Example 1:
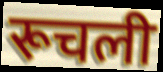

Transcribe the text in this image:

रूचली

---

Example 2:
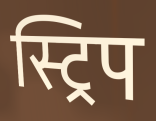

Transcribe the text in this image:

स्ट्रिप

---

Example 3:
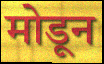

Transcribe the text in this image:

मोडून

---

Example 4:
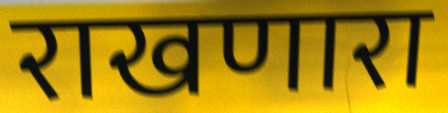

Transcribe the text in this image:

राखणारा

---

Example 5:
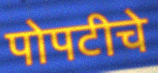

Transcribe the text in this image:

पोपटीचे